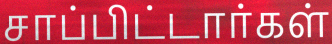
சாப்பிட்டார்கள்